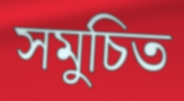
সমুচিত